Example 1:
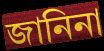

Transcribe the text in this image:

জানিনা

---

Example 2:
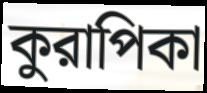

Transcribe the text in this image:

কুরাপিকা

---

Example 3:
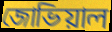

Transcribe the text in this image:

জোভিয়াল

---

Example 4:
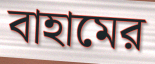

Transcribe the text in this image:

বাহামের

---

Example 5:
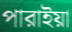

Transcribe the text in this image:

পারাইয়া